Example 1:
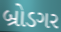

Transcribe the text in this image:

બ્રોડગર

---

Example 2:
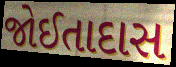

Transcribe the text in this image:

જોઈતાદાસ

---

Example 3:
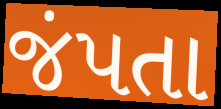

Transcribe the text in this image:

જંપતા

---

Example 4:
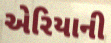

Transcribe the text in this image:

એરિયાની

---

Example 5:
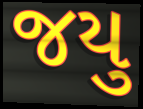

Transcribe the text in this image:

જયુ